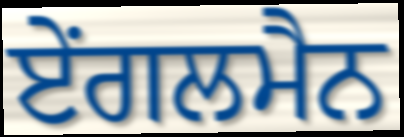
ਏਂਗਲਮੈਨ